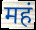
महं